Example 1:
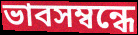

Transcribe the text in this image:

ভাবসম্বন্ধে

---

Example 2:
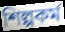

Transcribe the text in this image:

শিল্পকর্ম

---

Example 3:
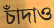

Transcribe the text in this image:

চাঁদাও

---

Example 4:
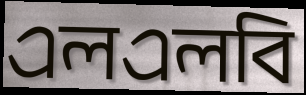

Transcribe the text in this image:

এলএলবি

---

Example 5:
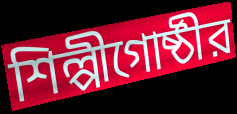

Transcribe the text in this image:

শিল্পীগোষ্ঠীর